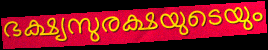
ഭക്ഷ്യസുരക്ഷയുടെയും